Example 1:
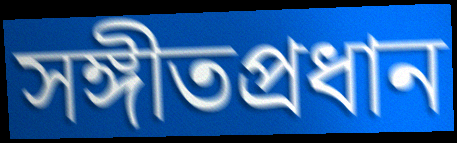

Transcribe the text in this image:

সঙ্গীতপ্রধান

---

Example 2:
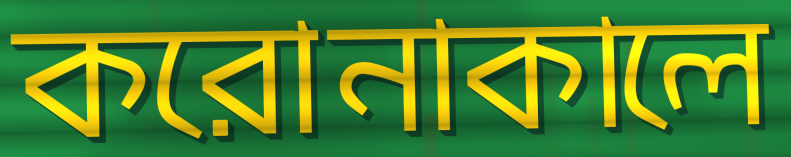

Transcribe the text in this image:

করোনাকালে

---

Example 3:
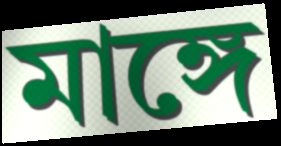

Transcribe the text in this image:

মাঙ্গে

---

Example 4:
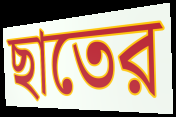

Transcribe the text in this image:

ছাতের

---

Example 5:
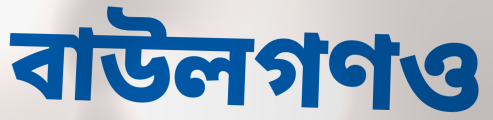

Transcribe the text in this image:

বাউলগণও